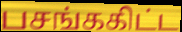
பசங்ககிட்ட